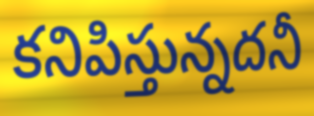
కనిపిస్తున్నదనీ